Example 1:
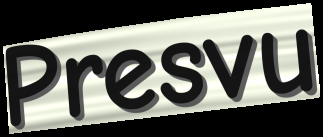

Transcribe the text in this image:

Presvu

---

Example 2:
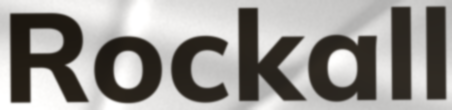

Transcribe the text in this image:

Rockall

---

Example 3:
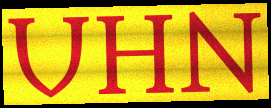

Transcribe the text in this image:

UHN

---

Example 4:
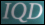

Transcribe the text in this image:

IQD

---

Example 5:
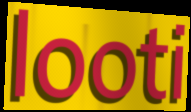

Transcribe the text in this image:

looti